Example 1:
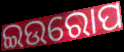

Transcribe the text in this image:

ଇଉରୋପ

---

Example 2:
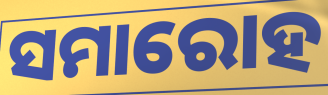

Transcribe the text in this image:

ସମାରୋହ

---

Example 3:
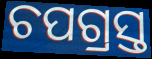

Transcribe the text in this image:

ଚପଗ୍ରସ୍ତ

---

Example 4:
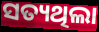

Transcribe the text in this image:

ସତ୍ୟଥିଲା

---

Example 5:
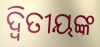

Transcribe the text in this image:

ଦ୍ଵିତୀୟଙ୍କ